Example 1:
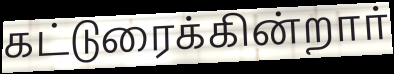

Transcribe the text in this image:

கட்டுரைக்கின்றார்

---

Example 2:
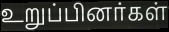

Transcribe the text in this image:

உறுப்பினர்கள்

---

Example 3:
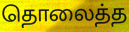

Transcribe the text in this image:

தொலைத்த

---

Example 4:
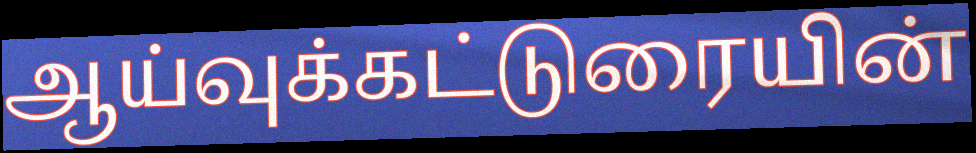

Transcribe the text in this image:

ஆய்வுக்கட்டுரையின்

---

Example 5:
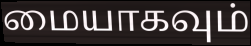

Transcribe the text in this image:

மையாகவும்